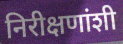
निरीक्षणांशी